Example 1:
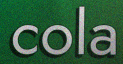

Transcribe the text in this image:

cola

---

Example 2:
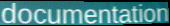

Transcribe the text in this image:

documentation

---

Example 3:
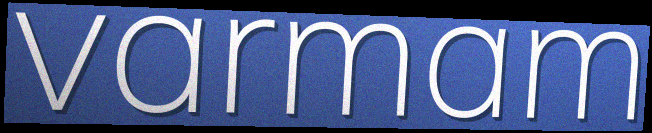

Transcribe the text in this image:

varmam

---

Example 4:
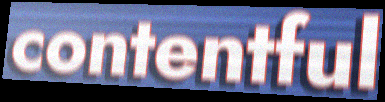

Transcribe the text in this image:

contentful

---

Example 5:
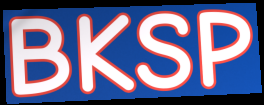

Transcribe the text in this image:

BKSP